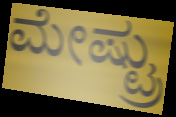
ಮೇಷ್ಟ್ರು